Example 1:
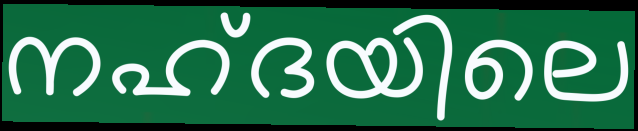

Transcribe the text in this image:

നഹ്ദയിലെ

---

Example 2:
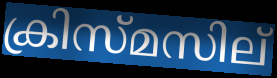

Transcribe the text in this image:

ക്രിസ്മസില്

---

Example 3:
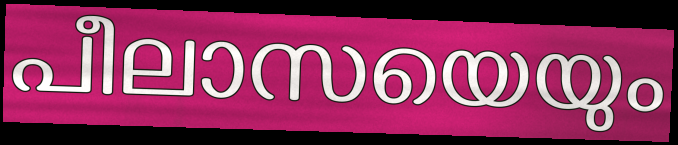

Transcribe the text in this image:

പീലാസയെയും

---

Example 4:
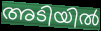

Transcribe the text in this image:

അടിയിൽ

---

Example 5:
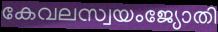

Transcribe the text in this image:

കേവലസ്വയംജ്യോതി